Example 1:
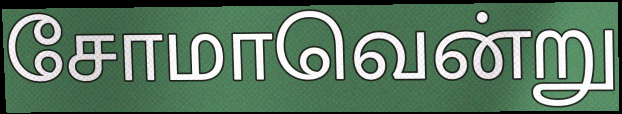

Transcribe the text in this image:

சோமாவென்று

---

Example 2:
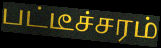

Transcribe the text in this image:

பட்டீச்சரம்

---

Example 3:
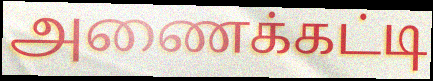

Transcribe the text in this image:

அணைக்கட்டி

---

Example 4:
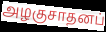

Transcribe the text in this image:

அழகுசாதனப்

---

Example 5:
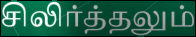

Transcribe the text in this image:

சிலிர்த்தலும்